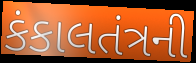
કંકાલતંત્રની